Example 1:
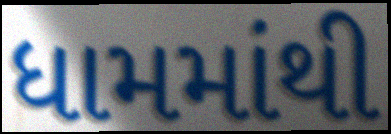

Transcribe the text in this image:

ધામમાંથી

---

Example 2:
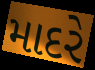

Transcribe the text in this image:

માદરે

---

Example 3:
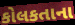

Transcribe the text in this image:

કોલકતાના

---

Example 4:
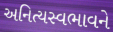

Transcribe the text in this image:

અનિત્યસ્વભાવને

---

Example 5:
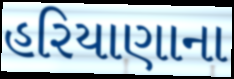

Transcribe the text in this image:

હરિયાણાના